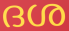
ദശ